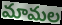
మామల